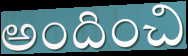
అందించి